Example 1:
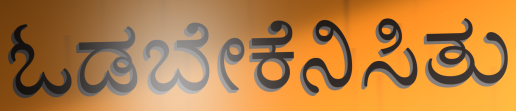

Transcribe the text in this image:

ಓಡಬೇಕೆನಿಸಿತು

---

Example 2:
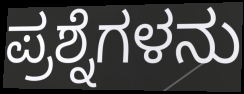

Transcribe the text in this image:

ಪ್ರಶ್ನೆಗಳನು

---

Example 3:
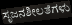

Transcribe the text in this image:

ಸೃಜನಶೀಲತೆಗಳು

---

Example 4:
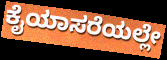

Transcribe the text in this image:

ಕೈಯಾಸರೆಯಲ್ಲೇ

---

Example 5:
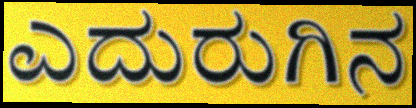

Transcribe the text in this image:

ಎದುರುಗಿನ